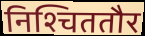
निश्चिततौर